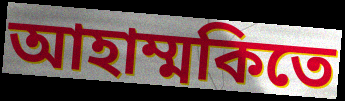
আহাম্মকিতে